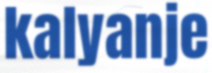
kalyanje